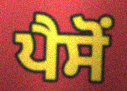
ਪੈਸੋਂ